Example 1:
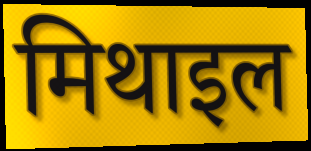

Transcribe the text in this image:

मिथाइल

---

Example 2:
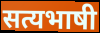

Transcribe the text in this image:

सत्यभाषी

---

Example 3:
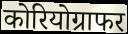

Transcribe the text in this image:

कोरियोग्राफर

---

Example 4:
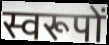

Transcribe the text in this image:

स्वरूपों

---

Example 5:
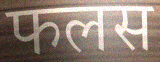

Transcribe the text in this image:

फलस